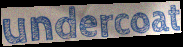
undercoat